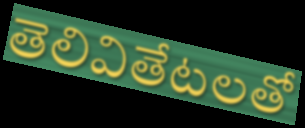
తెలివితేటలతో